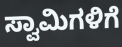
ಸ್ವಾಮಿಗಳಿಗೆ